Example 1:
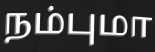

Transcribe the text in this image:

நம்புமா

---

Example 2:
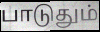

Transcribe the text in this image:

பாடுதும்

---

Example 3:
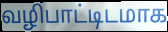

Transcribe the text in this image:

வழிபாட்டிடமாக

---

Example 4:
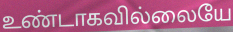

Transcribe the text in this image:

உண்டாகவில்லையே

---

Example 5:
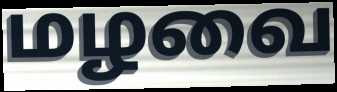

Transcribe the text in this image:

மழவை